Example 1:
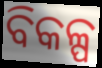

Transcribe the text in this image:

ବିକଳ୍ପ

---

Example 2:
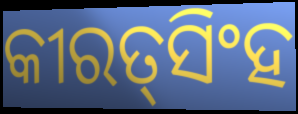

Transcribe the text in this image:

କୀରତ୍‍ସିଂହ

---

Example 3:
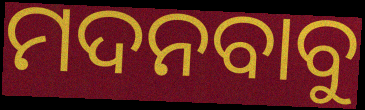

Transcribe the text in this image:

ମଦନବାବୁ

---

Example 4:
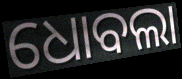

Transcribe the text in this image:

ଧୋବଲା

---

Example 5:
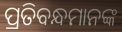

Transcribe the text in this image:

ପ୍ରତିବନ୍ଧମାନଙ୍କ